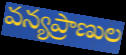
వన్యప్రాణుల